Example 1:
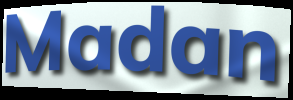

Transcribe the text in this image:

Madan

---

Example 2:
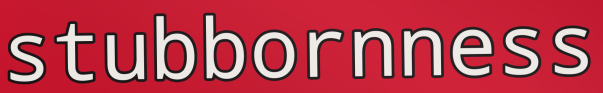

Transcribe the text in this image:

stubbornness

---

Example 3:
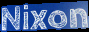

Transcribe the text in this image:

Nixon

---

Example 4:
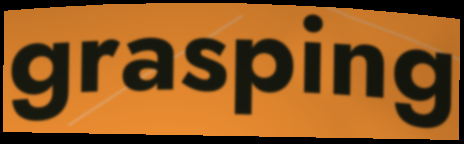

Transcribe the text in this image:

grasping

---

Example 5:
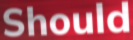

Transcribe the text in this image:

Should